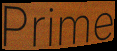
Prime